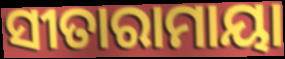
ସୀତାରାମାୟା